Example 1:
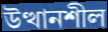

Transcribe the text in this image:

উত্থানশীল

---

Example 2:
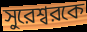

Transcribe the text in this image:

সুরেশ্বরকে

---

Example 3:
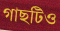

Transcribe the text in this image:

গাছটিও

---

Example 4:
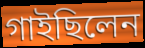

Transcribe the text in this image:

গাইছিলেন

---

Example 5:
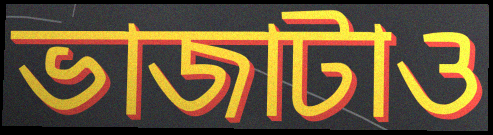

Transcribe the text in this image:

ভাজাটাও